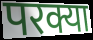
परक्या